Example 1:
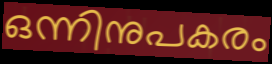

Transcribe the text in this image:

ഒന്നിനുപകരം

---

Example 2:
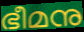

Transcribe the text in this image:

ഭീമനു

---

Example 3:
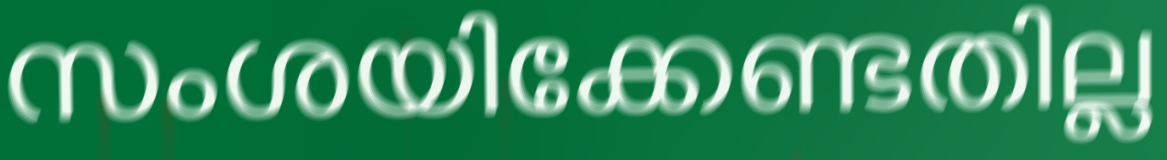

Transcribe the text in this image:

സംശയിക്കേണ്ടതില്ല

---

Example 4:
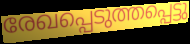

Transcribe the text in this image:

രേഖപ്പെടുത്തപ്പെട്ടു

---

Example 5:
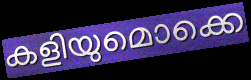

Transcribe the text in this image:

കളിയുമൊക്കെ